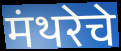
मंथरेचे